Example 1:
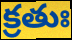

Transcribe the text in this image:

క్రతుః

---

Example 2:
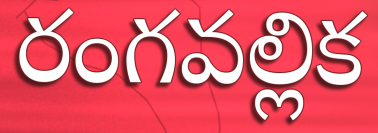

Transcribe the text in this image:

రంగవల్లిక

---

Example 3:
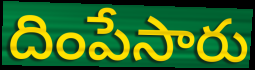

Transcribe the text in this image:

దింపేసారు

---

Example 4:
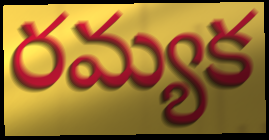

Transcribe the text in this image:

రమ్యక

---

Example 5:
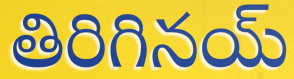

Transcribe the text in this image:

తిరిగినయ్